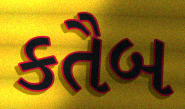
કતૈબ